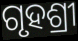
ଗୃହଶ୍ରୀ